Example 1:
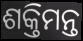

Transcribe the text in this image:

ଶକ୍ତିମନ୍ତ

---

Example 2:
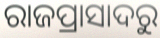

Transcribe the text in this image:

ରାଜପ୍ରାସାଦରୁ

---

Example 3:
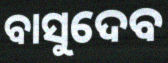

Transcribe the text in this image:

ବାସୁଦେବ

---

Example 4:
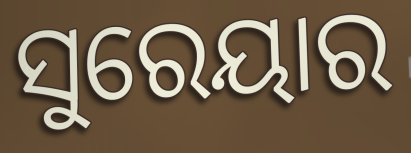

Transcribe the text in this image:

ସୁରେୟାର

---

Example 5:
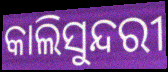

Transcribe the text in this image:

କାଲିସୁନ୍ଦରୀ